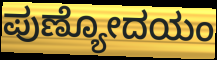
ಪುಣ್ಯೋದಯಂ